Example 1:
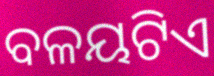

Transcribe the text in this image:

ବଳୟଟିଏ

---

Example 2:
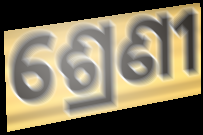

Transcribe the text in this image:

ଶ୍ରେଣୀ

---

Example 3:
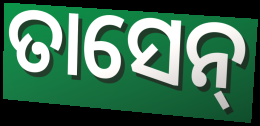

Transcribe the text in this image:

ତାସେନ୍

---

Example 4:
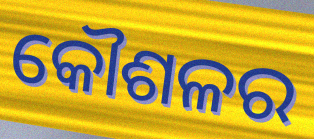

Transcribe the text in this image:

କୌଶଳର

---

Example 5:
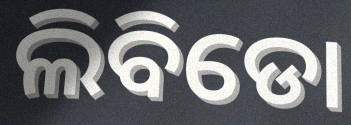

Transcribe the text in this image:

ଲିବିଡୋ